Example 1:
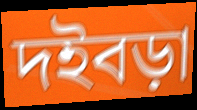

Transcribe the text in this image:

দইবড়া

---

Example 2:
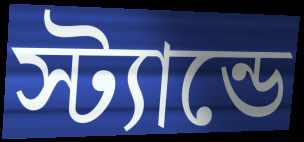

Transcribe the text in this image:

স্ট্যান্ডে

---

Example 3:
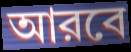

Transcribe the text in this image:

আরবে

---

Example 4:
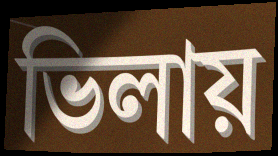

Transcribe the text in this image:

ভিলায়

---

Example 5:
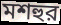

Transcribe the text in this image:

মশহুর